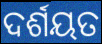
ଦର୍ଶୟତ